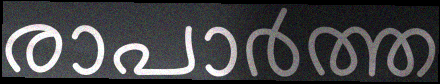
രാപാർത്ത